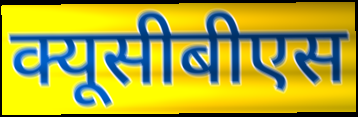
क्यूसीबीएस